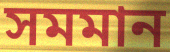
সমমান